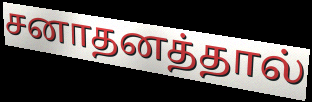
சனாதனத்தால்